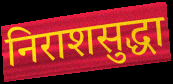
निराशसुद्धा